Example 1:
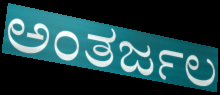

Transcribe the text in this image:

ಅಂತರ್ಜಲ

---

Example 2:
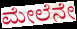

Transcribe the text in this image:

ಮೇಲೆನೇ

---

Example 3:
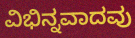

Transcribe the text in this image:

ವಿಭಿನ್ನವಾದವು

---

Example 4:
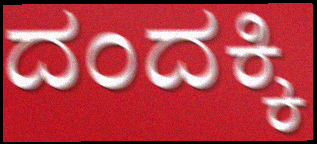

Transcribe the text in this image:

ದಂದಕ್ಕಿ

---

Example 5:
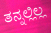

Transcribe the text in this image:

ತನ್ನಲ್ಲಿಲ್ಲ